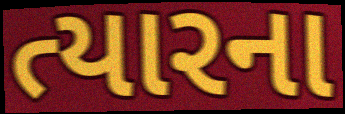
ત્યારના